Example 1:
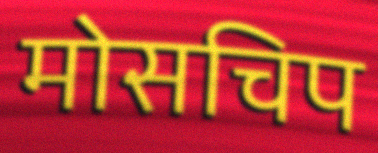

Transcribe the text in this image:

मोसचिप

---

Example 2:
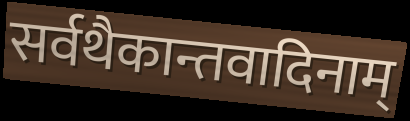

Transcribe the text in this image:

सर्वथैकान्तवादिनाम्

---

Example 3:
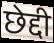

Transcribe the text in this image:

छेद्दी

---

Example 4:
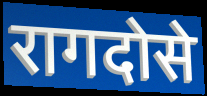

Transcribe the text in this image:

रागदोसे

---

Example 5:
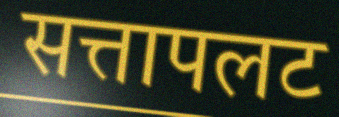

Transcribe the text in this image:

सत्तापलट